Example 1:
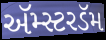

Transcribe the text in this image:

ઍમ્સ્ટરડૅમ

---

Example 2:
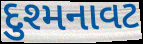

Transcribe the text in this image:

દુશ્મનાવટ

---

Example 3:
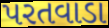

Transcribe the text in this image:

પરતવાડા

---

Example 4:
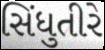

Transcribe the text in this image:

સિંધુતીરે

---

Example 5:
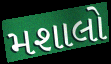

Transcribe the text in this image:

મશાલો